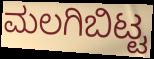
ಮಲಗಿಬಿಟ್ಟ